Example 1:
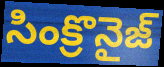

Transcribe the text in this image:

సింక్రొనైజ్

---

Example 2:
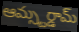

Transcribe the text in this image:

ఆమ్స్టర్డామ్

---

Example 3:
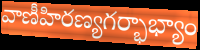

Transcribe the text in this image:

వాణీహిరణ్యగర్భాభ్యాం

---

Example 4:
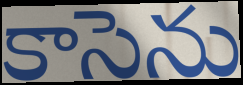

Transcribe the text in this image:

కాసెను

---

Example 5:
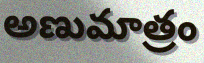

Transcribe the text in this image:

అణుమాత్రం